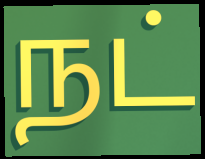
நட்